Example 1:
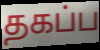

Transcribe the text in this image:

தகப்ப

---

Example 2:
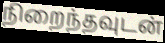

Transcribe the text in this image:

நிறைந்தவுடன்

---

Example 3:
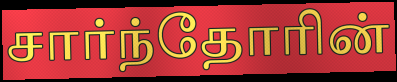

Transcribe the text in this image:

சார்ந்தோரின்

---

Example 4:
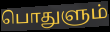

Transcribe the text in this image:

பொதுளும்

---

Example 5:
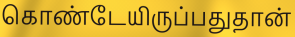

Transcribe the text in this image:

கொண்டேயிருப்பதுதான்